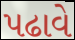
પઢાવે